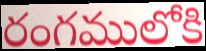
రంగములోకి